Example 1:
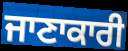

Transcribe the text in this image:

ਜਾਣਾਕਾਰੀ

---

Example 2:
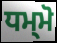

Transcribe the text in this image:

ਧਮ੍ਮੋ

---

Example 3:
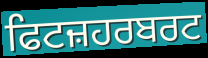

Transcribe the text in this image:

ਫਿਟਜ਼ਹਰਬਰਟ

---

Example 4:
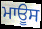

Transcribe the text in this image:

ਮਾਊਸ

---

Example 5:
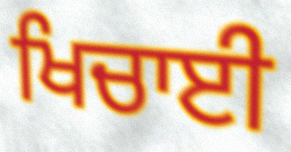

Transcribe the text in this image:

ਖਿਚਾਈ